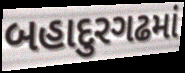
બહાદુરગઢમાં